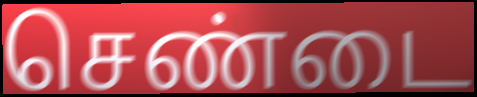
செண்டை